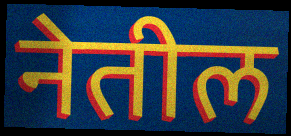
नेतील